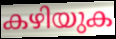
കഴിയുക